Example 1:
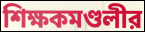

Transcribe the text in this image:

শিক্ষকমণ্ডলীর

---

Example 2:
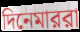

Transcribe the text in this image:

দিনেমাররা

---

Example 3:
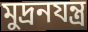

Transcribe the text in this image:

মুদ্রনযন্ত্র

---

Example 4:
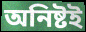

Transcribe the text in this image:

অনিষ্টই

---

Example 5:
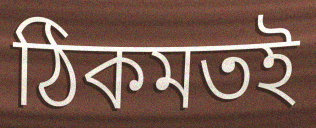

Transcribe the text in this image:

ঠিকমতই